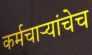
कर्मचाऱ्यांचेच